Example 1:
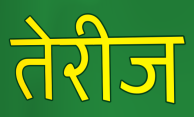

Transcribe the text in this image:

तेरीज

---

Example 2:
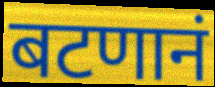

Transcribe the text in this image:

बटणानं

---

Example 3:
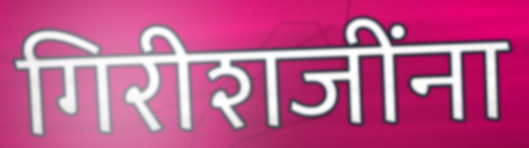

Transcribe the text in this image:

गिरीशजींना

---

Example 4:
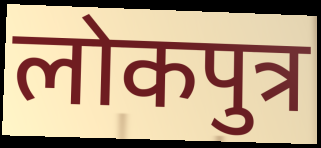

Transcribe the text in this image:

लोकपुत्र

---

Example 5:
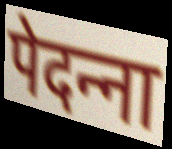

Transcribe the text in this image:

पेदन्ना